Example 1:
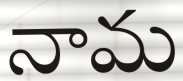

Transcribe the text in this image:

నామ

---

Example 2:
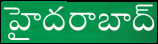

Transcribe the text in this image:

హైదరాబాద్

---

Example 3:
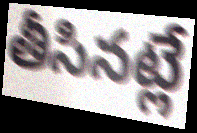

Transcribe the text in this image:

తీసినట్లే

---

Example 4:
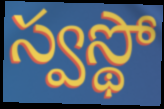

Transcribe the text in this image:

స్వస్థో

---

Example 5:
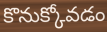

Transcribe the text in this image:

కొనుక్కోవడం